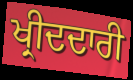
ਖ੍ਰੀਦਦਾਰੀ